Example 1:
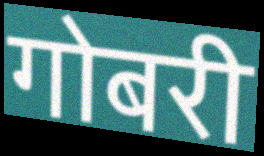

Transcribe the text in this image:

गोबरी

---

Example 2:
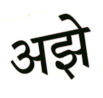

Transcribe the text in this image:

अझे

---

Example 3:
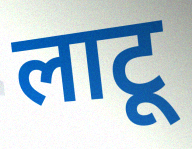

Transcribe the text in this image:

लाटू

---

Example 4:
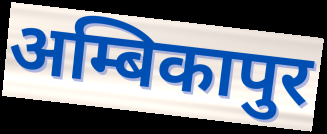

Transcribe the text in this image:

अम्बिकापुर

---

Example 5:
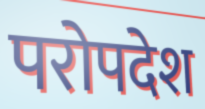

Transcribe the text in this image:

परोपदेश